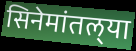
सिनेमांतल्या